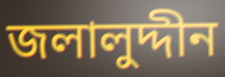
জলালুদ্দীন